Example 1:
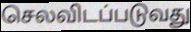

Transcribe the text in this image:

செலவிடப்படுவது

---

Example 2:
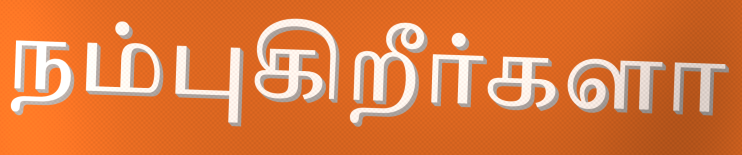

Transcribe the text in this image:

நம்புகிறீர்களா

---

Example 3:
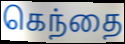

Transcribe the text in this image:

கெந்தை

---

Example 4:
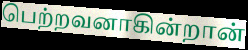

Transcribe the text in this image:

பெற்றவனாகின்றான்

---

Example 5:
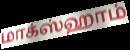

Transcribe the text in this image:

மாக்ஸ்ஹாம்